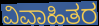
ವಿವಾಹಿತರ